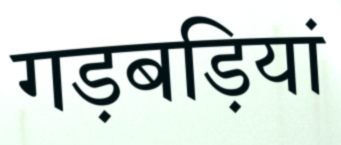
गड़बड़ियां